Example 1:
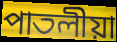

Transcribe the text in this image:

পাতলীয়া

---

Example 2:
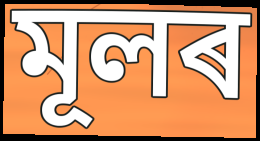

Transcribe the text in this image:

মূলৰ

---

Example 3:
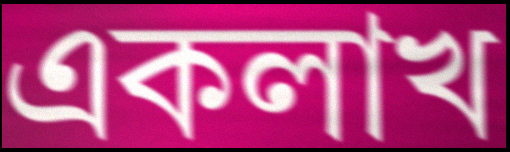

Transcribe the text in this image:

একলাখ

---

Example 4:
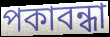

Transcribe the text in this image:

পকাবন্ধা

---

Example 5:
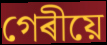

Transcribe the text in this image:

গেৰীয়ে